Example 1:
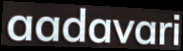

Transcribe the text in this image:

aadavari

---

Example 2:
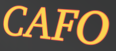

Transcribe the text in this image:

CAFO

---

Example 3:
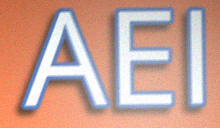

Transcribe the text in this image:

AEI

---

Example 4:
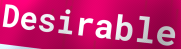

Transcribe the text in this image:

Desirable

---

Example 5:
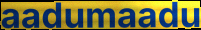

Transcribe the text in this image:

aadumaadu